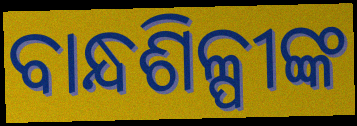
ବାନ୍ଧଶିଳ୍ପୀଙ୍କ